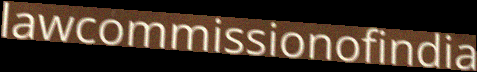
lawcommissionofindia